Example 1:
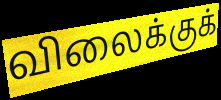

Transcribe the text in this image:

விலைக்குக்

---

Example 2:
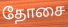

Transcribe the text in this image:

தோசை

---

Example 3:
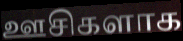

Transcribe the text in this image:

ஊசிகளாக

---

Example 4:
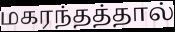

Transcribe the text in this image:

மகரந்தத்தால்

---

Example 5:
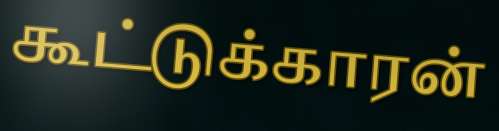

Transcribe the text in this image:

கூட்டுக்காரன்